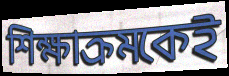
শিক্ষাক্রমকেই